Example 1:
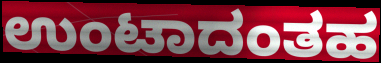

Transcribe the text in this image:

ಉಂಟಾದಂತಹ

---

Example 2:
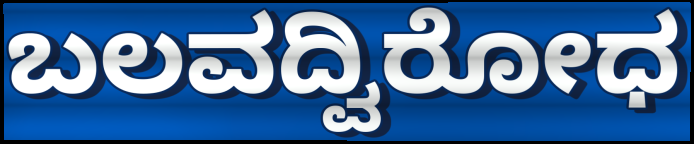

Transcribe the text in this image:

ಬಲವದ್ವಿರೋಧ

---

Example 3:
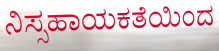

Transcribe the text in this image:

ನಿಸ್ಸಹಾಯಕತೆಯಿಂದ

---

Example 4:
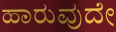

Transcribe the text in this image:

ಹಾರುವುದೇ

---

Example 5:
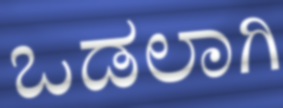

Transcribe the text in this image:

ಒಡಲಾಗಿ